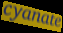
cyanate